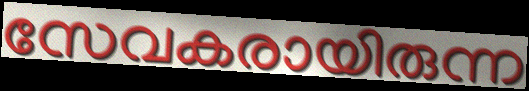
സേവകരായിരുന്ന